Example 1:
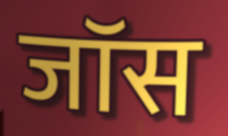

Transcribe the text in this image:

जॉस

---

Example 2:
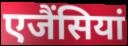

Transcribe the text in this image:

एजैंसियां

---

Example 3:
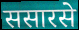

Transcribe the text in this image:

ससारसे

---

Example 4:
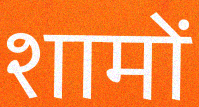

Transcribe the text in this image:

शामों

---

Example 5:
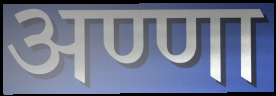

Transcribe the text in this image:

अण्णा